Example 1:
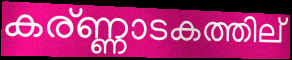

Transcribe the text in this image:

കര്ണ്ണാടകത്തില്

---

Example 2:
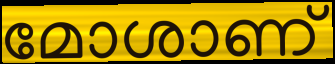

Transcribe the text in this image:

മോശാണ്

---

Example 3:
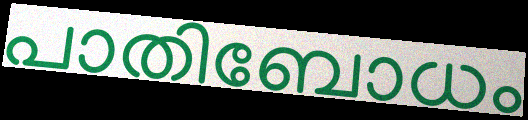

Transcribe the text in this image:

പാതിബോധം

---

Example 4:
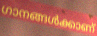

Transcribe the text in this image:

ഗാനങ്ങൾക്കാണ്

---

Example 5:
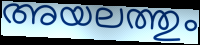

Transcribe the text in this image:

അയലത്തും